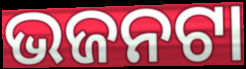
ଭଜନଟା